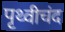
पृथ्वीचंद